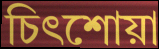
চিৎশোয়া